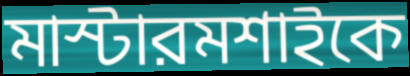
মাস্টারমশাইকে